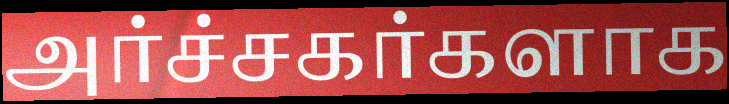
அர்ச்சகர்களாக